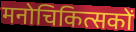
मनोचिकित्सकों